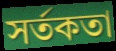
সর্তকতা